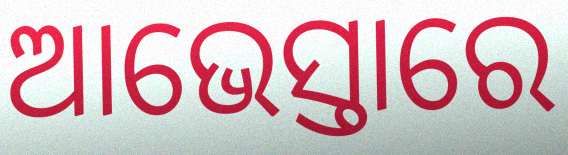
ଆଭେସ୍ତାରେ